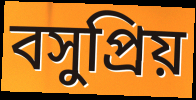
বসুপ্রিয়